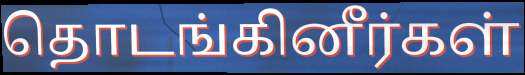
தொடங்கினீர்கள்